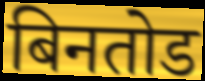
बिनतोड